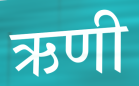
ऋणी